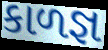
કાળજ્ઞ